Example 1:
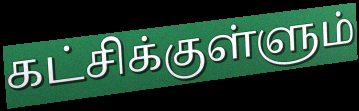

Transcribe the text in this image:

கட்சிக்குள்ளும்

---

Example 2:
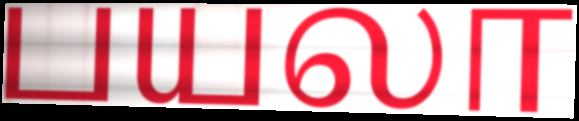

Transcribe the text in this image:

பயலா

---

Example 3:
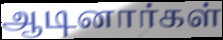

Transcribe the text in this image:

ஆடினார்கள்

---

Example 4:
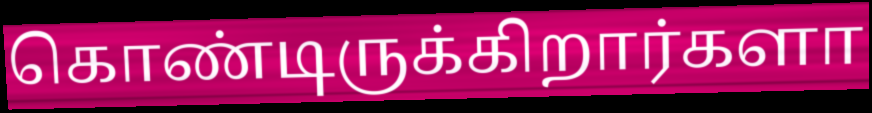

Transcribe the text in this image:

கொண்டிருக்கிறார்களா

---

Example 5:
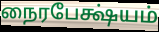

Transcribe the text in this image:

நைரபேக்ஷ்யம்